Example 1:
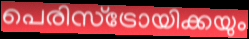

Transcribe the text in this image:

പെരിസ്ട്രോയിക്കയും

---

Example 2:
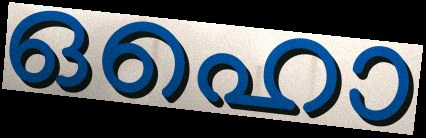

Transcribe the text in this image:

ഒഹൊ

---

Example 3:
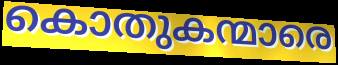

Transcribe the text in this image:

കൊതുകന്മാരെ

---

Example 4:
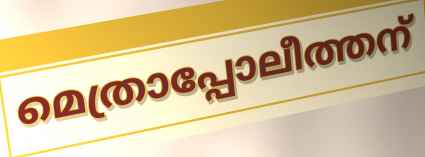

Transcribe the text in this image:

മെത്രാപ്പോലീത്തന്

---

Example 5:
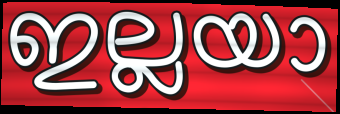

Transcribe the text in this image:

ഇല്ലയാ